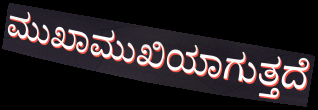
ಮುಖಾಮುಖಿಯಾಗುತ್ತದೆ